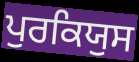
ਪੁਰਕਿਯੁਸ